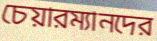
চেয়ারম্যানদের